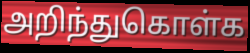
அறிந்துகொள்க